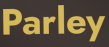
Parley